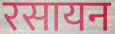
रसायन